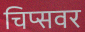
चिप्सवर